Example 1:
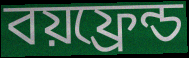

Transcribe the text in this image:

বয়ফ্রেন্ড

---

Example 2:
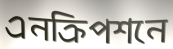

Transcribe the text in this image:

এনক্রিপশনে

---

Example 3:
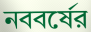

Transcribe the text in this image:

নববর্ষের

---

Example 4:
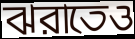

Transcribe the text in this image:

ঝরাতেও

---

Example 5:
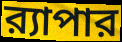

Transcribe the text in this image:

র‍্যাপার